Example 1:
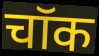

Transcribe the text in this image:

चॉक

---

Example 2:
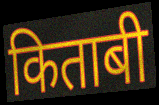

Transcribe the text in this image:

किताबी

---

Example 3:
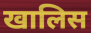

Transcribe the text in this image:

खालिस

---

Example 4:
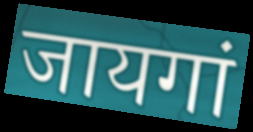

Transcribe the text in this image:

जायगां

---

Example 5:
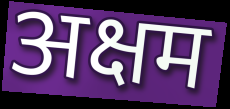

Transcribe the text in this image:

अक्षम